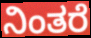
ನಿಂತರೆ